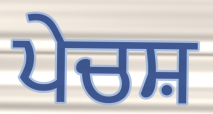
ਪੇਚਸ਼